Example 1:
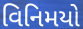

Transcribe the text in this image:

વિનિમયો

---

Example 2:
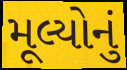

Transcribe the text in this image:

મૂલ્યોનું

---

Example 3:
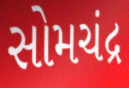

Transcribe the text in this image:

સોમચંદ્ર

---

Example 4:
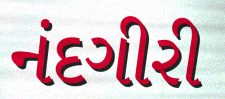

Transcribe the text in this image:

નંદગીરી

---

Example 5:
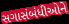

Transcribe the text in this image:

સગાસંબંધીઓને